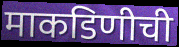
माकडिणीची